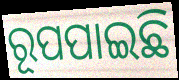
ରୂପପାଇଛି